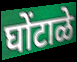
घोंटाळे